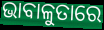
ଭାବାଳୁତାରେ